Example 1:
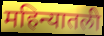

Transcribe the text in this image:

महिन्यातली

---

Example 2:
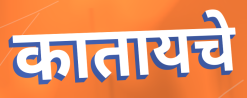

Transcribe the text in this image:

कातायचे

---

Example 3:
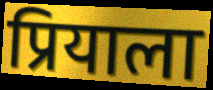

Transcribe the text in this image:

प्रियाला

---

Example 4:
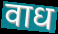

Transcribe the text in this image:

वाध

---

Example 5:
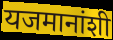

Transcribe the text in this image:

यजमानांशी